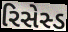
રિસેસ્ડ